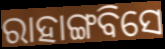
ରାହାଙ୍ଗବିସେ